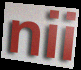
nii